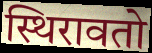
स्थिरावतो